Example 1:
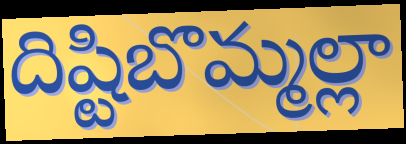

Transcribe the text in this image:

దిష్టిబొమ్మల్లా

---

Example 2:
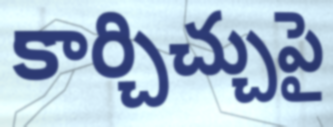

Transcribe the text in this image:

కార్చిచ్చుపై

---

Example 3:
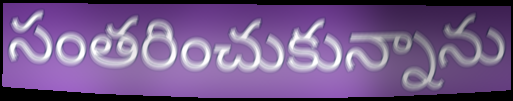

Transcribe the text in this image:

సంతరించుకున్నాను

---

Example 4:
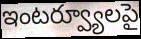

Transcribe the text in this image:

ఇంటర్వ్యూలపై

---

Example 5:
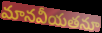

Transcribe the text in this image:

మానవీయతనూ